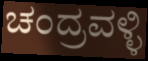
ಚಂದ್ರವಳ್ಳಿ